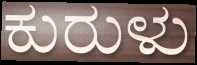
ಕುರುಳು